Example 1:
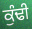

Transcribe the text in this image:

ਕੁੰਢੀ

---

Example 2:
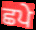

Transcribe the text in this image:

ਛਪੇ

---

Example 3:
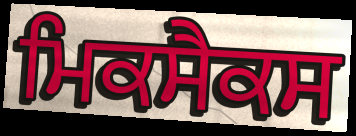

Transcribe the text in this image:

ਮਿਕਸੈਕਸ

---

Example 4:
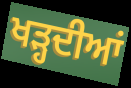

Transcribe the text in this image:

ਖੜ੍ਹਦੀਆਂ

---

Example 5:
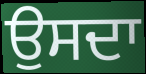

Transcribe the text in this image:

ਉਸਦਾ